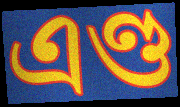
এণ্ড